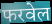
फरवेल